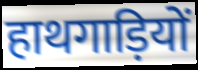
हाथगाड़ियों